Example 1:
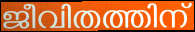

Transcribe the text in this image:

ജീവിതത്തിന്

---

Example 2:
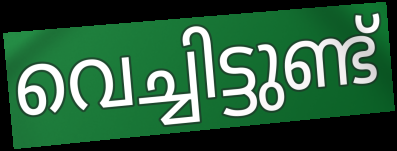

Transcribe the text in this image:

വെച്ചിട്ടുണ്ട്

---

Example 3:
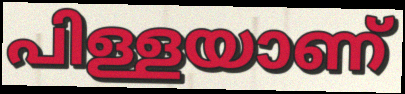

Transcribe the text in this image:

പിള്ളയാണ്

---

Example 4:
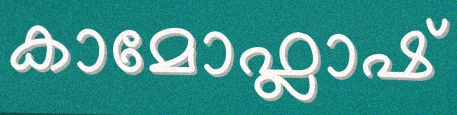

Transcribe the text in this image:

കാമോഫ്ലാഷ്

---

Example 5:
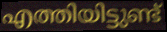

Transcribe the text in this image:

എത്തിയിട്ടുണ്ട്